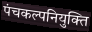
पंचकल्पनियुक्ति